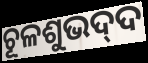
ଚୂଳଶୁଭଦ୍‍ଦ